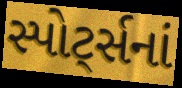
સ્પોર્ટ્સનાં